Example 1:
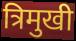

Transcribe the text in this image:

त्रिमुखी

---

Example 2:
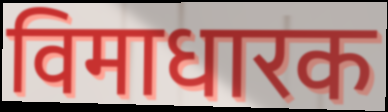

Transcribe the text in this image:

विमाधारक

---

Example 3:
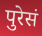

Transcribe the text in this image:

पुरेसं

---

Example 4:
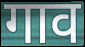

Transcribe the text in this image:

गाव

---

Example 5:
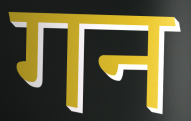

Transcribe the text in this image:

गन